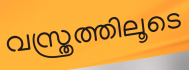
വസ്ത്രത്തിലൂടെ